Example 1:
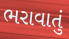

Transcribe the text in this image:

ભરાવાતું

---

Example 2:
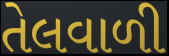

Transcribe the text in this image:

તેલવાળી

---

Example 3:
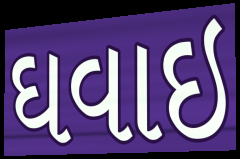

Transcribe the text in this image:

ઘવાઇ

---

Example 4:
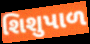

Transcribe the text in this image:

શિશુપાળ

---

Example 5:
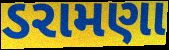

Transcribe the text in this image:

ડરામણા